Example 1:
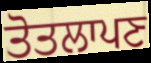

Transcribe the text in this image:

ਤੋਤਲਾਪਣ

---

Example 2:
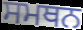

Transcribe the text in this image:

ਸਮਥਨ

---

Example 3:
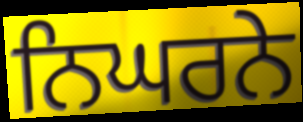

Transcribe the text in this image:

ਨਿਘਰਨੇ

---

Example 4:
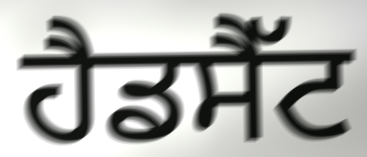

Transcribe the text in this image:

ਹੈਡਸੈੱਟ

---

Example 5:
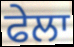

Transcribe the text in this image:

ਫੇਲਾ